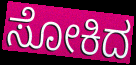
ಸೋಕಿದ